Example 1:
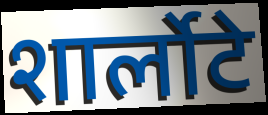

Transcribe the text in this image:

शार्लोटे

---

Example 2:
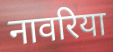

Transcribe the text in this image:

नावरिया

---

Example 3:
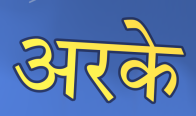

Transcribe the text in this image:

अरके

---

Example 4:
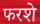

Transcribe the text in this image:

फरशे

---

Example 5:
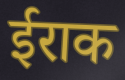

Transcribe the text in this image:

ईराक